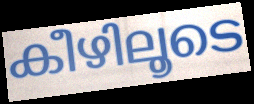
കീഴിലൂടെ